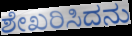
ಶೇಖರಿಸಿದನು